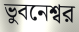
ভুবনেশ্বর